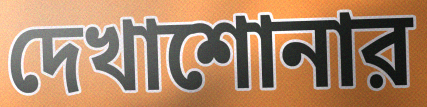
দেখাশোনার